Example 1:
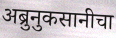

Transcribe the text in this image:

अब्रुनुकसानीचा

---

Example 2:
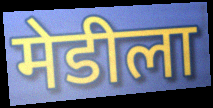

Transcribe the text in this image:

मेडीला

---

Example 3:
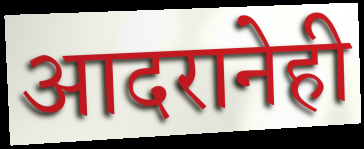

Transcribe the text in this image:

आदरानेही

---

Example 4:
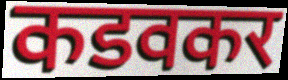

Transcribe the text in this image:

कडवकर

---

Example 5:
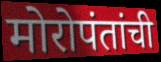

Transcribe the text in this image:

मोरोपंतांची